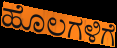
ಹೊಲಗಳಿಗೆ